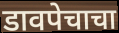
डावपेचाचा